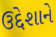
ઉદ્દેશાને